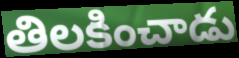
తిలకించాడు